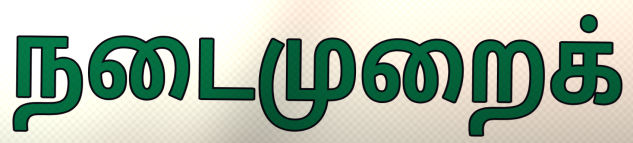
நடைமுறைக்